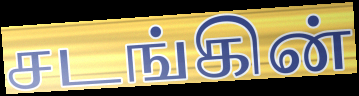
சடங்கின்